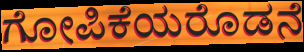
ಗೋಪಿಕೆಯರೊಡನೆ